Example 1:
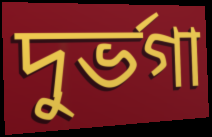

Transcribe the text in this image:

দুর্ভগা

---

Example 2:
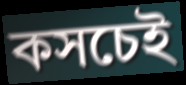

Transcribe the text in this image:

কসচেই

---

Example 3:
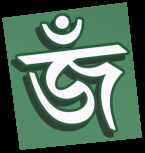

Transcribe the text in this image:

জঁ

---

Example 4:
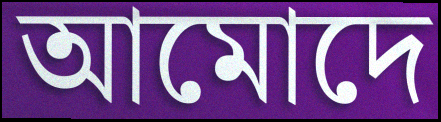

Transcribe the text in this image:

আমোদে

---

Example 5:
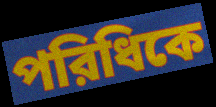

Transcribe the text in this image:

পরিধিকে